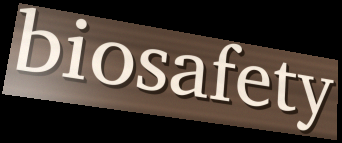
biosafety